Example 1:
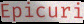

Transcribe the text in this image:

Epicuri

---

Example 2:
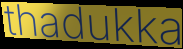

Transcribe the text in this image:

thadukka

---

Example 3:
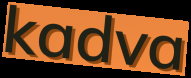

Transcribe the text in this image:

kadva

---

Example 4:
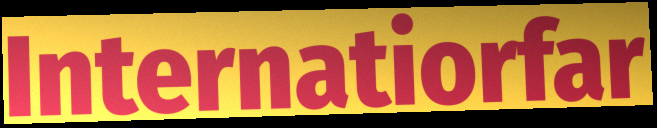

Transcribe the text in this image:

Internatiorfar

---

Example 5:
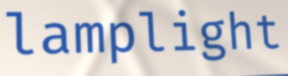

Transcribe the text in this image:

lamplight